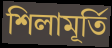
শিলামূর্তি